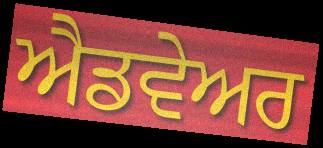
ਐਡਵੇਅਰ